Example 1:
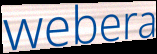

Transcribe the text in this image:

webera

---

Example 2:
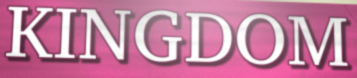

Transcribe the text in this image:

KINGDOM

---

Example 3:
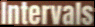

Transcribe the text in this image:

Intervals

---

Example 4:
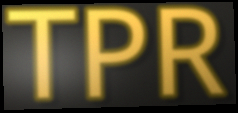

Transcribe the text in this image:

TPR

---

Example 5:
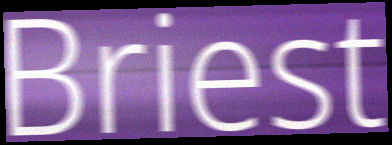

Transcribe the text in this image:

Briest